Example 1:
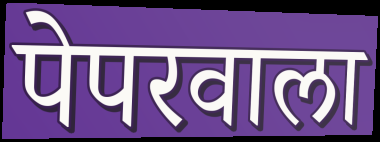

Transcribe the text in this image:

पेपरवाला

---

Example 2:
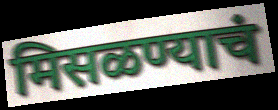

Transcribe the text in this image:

मिसळण्याचं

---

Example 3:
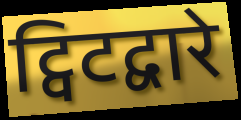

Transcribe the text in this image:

ट्विटद्वारे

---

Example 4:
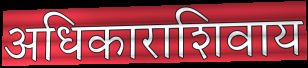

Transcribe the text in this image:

अधिकाराशिवाय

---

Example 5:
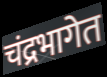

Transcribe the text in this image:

चंद्रभागेत